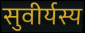
सुवीर्यस्य